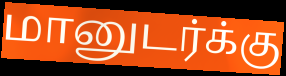
மானுடர்க்கு